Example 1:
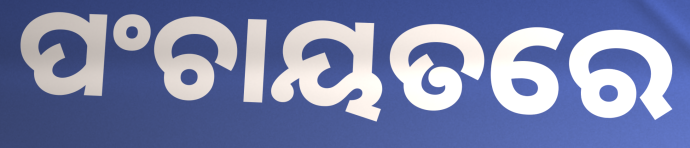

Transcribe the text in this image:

ପଂଚାୟତରେ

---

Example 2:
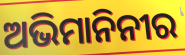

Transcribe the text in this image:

ଅଭିମାନିନୀର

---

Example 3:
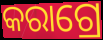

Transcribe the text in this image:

କରାଗ୍ରେ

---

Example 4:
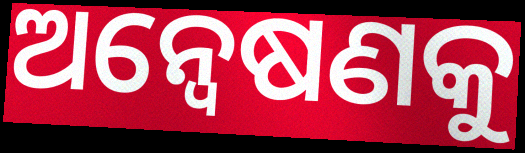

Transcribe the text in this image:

ଅନ୍ବେଷଣକୁ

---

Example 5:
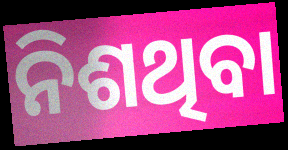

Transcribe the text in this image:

ନିଶଥିବା